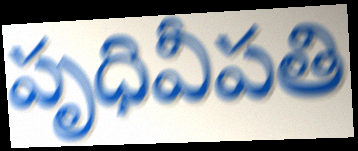
పృధివీపతి